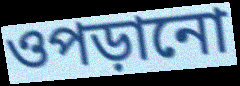
ওপড়ানো